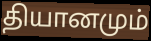
தியானமும்